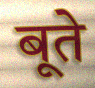
बूते